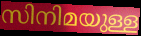
സിനിമയുള്ള